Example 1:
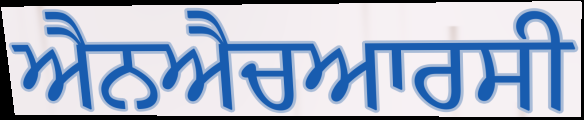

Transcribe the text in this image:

ਐਨਐਚਆਰਸੀ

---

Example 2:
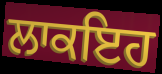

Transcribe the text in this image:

ਲਾਕਇਹ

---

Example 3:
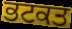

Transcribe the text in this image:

ਭਟਕਤ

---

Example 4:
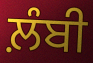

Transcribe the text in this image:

ਲ਼ੰਬੀ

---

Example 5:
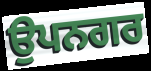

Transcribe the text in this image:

ਉਪਨਗਰ